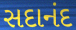
સદાનંદ